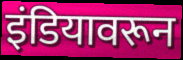
इंडियावरून